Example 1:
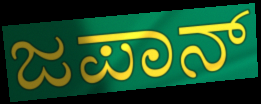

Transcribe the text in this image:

ಜಪಾನ್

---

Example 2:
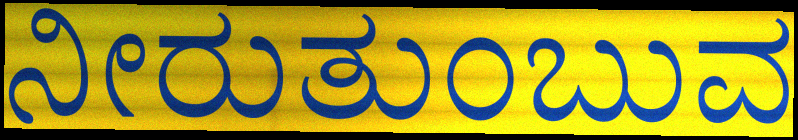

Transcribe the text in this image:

ನೀರುತುಂಬುವ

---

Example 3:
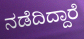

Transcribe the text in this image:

ನಡೆದಿದ್ದಾರೆ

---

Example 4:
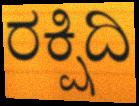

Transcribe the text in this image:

ರಕ್ಷಿದಿ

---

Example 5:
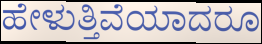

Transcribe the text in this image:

ಹೇಳುತ್ತಿವೆಯಾದರೂ